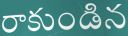
రాకుండిన